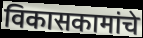
विकासकामांचे